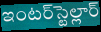
ఇంటర్‌స్టెల్లార్